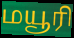
மயூரி